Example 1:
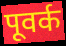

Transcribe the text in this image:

पूवर्क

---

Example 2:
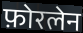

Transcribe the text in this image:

फ़ोरलेन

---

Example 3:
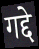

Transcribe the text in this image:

गद्दे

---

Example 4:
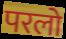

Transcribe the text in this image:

परलो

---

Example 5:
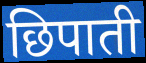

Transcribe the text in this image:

छिपाती